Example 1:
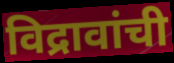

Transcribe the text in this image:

विद्रावांची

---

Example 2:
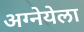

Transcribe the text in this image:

अग्नेयेला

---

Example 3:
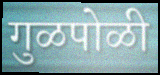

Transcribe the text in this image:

गुळपोळी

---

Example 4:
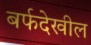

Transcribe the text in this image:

बर्फदेखील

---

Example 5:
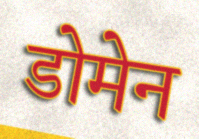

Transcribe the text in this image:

डोमेन